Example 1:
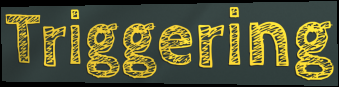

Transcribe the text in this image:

Triggering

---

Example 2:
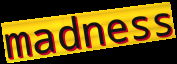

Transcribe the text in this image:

madness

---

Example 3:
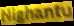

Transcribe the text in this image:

Nighantu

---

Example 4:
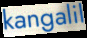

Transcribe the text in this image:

kangalil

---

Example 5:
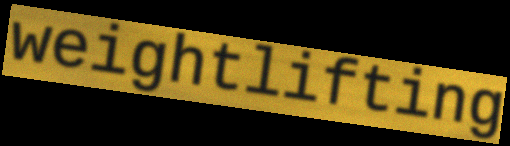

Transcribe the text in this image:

weightlifting